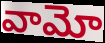
వామో